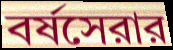
বর্ষসেরার